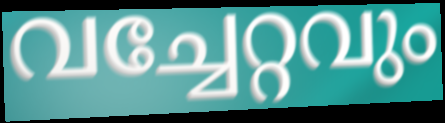
വച്ചേറ്റവും